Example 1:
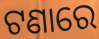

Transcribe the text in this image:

ଟଣାରେ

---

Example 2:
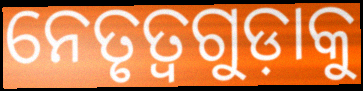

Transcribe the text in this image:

ନେତୃତ୍ୱଗୁଡ଼ାକୁ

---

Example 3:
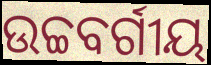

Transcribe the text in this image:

ଉଚ୍ଚବର୍ଗୀୟ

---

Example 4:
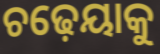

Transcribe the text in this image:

ଚଢ଼େୟାକୁ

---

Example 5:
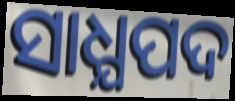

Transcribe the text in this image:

ସାଧ୍ଯପଦ